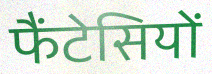
फैंटेसियों